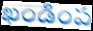
ఖండింప